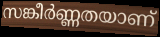
സങ്കീർണ്ണതയാണ്